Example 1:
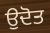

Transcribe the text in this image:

ਉਦੋਤ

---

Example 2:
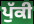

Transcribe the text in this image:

ਪੁੱਕੀ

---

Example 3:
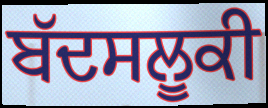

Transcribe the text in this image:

ਬੱਦਸਲੂਕੀ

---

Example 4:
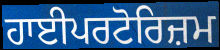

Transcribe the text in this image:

ਹਾਈਪਰਟੋਰਿਜ਼ਮ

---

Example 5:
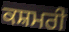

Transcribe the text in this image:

ਕਸ਼ਮਰੀ